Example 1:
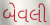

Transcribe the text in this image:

બેવલી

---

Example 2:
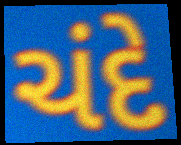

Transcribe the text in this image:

ચંદે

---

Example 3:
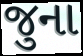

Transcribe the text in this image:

જુના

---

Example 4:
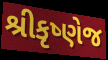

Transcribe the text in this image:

શ્રીકૃષ્ણેજ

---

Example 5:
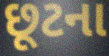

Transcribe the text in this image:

છૂટના